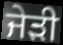
ਜੇੜੀ